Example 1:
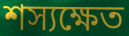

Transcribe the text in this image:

শস্যক্ষেত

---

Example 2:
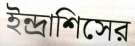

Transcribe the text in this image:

ইন্দ্রাশিসের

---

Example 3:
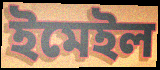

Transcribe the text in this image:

ইমেইল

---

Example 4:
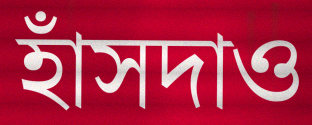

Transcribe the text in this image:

হাঁসদাও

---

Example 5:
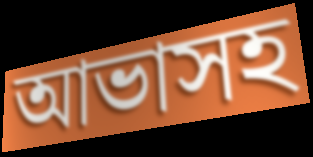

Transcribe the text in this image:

আভাসহ